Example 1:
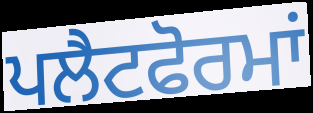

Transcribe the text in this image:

ਪਲੈਟਫੋਰਮਾਂ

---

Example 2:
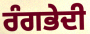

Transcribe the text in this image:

ਰੰਗਭੇਦੀ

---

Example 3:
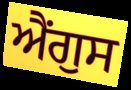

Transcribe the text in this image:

ਐਂਗੁਸ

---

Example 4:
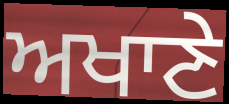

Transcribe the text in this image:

ਅਖਾਣੇ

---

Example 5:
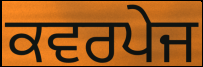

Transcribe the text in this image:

ਕਵਰਪੇਜ